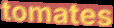
tomates